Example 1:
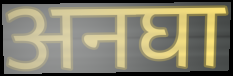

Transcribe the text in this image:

अनघा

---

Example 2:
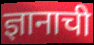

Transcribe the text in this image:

ज्ञानाची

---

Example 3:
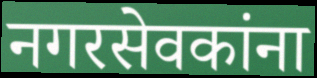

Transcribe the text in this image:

नगरसेवकांना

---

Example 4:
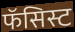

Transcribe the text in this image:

फॅसिस्ट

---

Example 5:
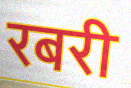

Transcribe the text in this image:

रबरी